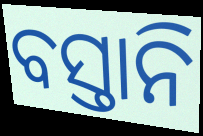
ବସ୍ତାନି